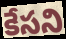
కేసని